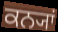
ਕਨ੍ਯਾਂ